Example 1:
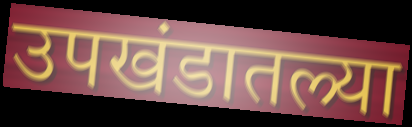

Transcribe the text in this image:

उपखंडातल्या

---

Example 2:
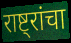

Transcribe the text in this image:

राष्ट्रांचा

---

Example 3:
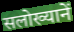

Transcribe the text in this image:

सलोख्यानें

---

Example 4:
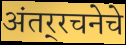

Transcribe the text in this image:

अंतर्रचनेचे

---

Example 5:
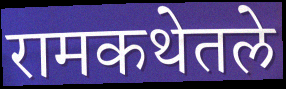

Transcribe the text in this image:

रामकथेतले